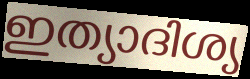
ഇത്യാദിശ്യ